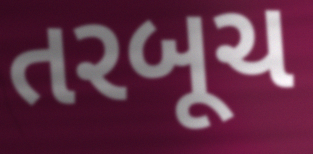
તરબૂચ